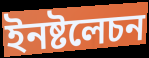
ইনষ্টলেচন